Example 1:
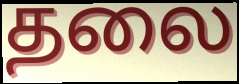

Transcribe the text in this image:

தலை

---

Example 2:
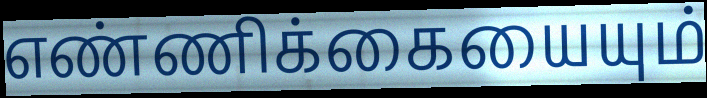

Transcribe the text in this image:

எண்ணிக்கையையும்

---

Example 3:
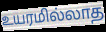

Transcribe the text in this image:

உயரமில்லாத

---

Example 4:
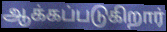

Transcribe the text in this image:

ஆக்கப்படுகிறார்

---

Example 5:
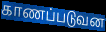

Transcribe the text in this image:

காணப்படுவன